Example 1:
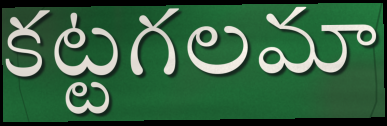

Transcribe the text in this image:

కట్టగలమా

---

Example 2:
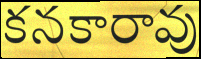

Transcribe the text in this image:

కనకారావు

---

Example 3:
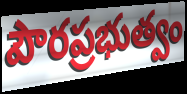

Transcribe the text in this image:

పౌరప్రభుత్వం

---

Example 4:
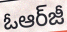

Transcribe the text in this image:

ఓఆర్‌జీ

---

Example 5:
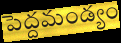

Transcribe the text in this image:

పెద్దమండ్యం